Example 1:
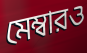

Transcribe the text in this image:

মেম্বারও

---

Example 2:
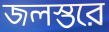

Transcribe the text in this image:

জলস্তরে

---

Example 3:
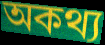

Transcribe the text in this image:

অকথ্য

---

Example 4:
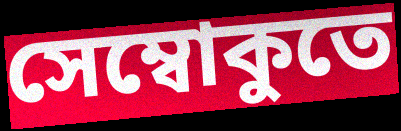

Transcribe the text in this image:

সেম্বোকুতে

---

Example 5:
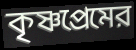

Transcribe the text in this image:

কৃষ্ণপ্রেমের